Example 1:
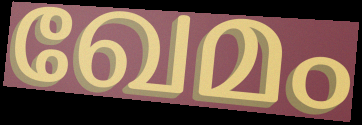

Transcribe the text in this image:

ഖേമം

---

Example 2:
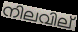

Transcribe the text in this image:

നിലവില്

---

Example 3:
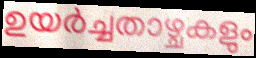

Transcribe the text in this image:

ഉയർച്ചതാഴ്ചകളും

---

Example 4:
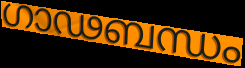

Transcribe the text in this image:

ഗാഢബന്ധം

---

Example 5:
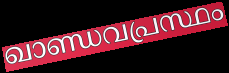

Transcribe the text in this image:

ഖാണ്ഡവപ്രസ്ഥം